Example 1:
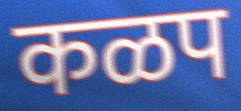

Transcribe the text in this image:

कळप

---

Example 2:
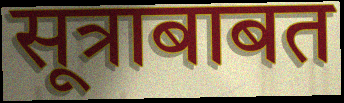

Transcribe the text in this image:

सूत्राबाबत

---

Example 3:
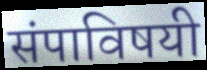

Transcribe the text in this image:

संपाविषयी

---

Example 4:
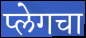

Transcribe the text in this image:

प्लेगचा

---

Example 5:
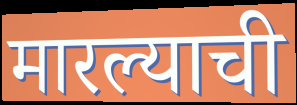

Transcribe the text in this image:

मारल्याची